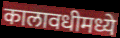
कालावधीमध्ये